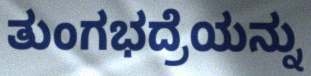
ತುಂಗಭದ್ರೆಯನ್ನು